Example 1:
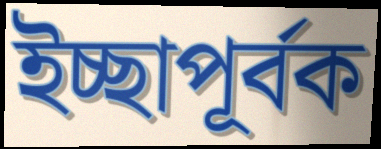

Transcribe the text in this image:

ইচ্ছাপূর্বক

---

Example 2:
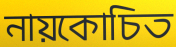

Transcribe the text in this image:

নায়কোচিত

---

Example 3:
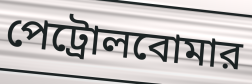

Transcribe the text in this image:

পেট্রোলবোমার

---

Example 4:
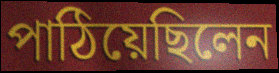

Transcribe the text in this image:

পাঠিয়েছিলেন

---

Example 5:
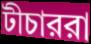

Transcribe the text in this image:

টীচাররা